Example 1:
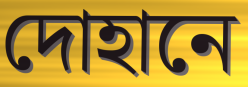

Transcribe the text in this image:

দোহানে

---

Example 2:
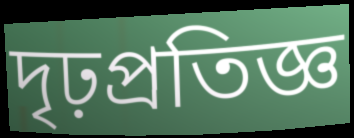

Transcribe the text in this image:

দৃঢ়প্রতিজ্ঞ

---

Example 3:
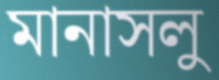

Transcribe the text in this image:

মানাসলু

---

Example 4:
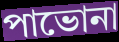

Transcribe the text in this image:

পাভোনা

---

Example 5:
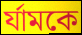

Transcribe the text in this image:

র্যামকে